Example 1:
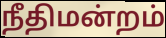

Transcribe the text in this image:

நீதிமன்றம்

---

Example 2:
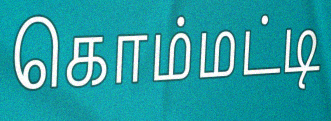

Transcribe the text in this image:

கொம்மட்டி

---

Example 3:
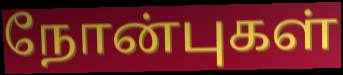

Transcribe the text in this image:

நோன்புகள்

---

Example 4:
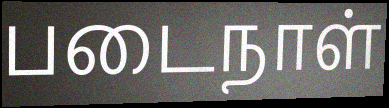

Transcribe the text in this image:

படைநாள்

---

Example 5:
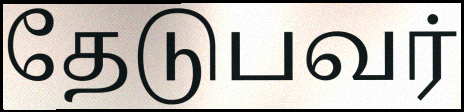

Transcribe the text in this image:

தேடுபவர்